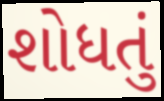
શોધતું